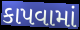
કાપવામાં